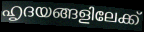
ഹൃദയങ്ങളിലേക്ക്